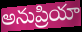
అనుప్రియా